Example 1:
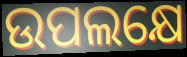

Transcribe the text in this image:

ଉପଲକ୍ଷେ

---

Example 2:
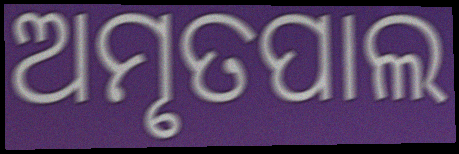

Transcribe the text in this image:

ଅମୃତପାଲ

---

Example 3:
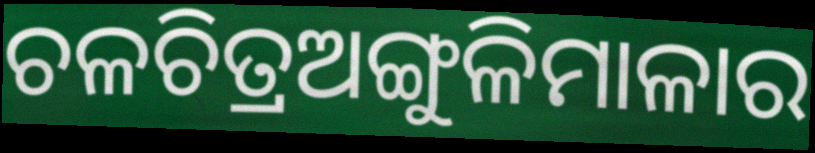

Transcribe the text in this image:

ଚଳଚିତ୍ରଅଙ୍ଗୁଳିମାଳାର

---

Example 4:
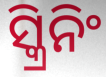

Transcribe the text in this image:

ସ୍କ୍ରିନିଂ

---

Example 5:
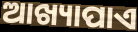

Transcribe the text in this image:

ଆଖ୍ୟାପାଏ